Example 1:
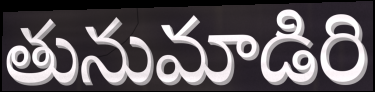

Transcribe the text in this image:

తునుమాడిరి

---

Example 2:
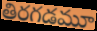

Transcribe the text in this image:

తిరగడమూ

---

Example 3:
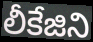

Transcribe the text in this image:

లీకేజిని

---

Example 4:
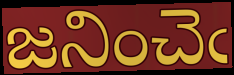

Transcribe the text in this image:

జనించెఁ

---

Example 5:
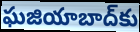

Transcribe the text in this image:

ఘజియాబాద్‌కు